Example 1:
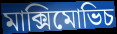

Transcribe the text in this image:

মাক্সিমোভিচ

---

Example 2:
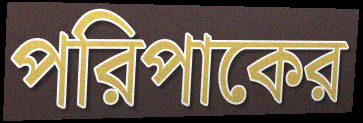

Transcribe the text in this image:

পরিপাকের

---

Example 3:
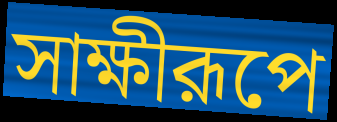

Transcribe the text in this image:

সাক্ষীরূপে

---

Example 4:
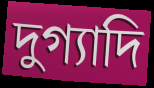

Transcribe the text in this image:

দুগ্যাদি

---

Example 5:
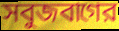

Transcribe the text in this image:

সবুজবাগের